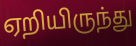
ஏறியிருந்து